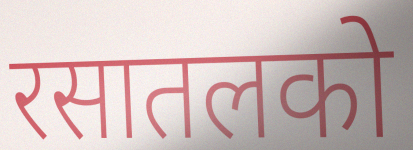
रसातलको